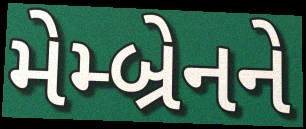
મેમ્બ્રેનને